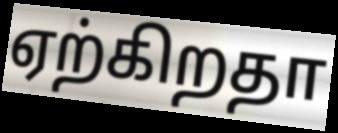
ஏற்கிறதா